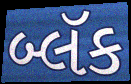
બ્લૅક